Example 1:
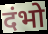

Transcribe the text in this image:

दंभो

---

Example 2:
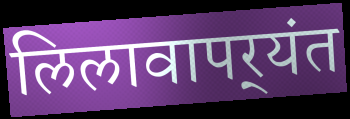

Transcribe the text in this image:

लिलावापर्यंत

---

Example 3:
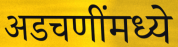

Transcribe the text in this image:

अडचणींमध्ये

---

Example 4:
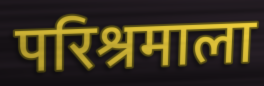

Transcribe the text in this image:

परिश्रमाला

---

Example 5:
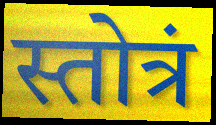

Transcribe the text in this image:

स्तोत्रं